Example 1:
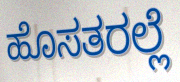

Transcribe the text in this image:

ಹೊಸತರಲ್ಲೆ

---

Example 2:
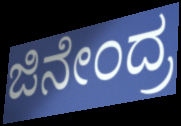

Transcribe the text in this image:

ಜಿನೇಂದ್ರ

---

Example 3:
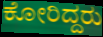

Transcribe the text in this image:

ಕೋರಿದ್ದರು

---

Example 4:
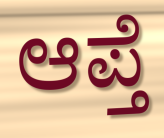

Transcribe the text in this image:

ಆಪ್ತೆ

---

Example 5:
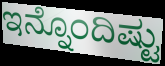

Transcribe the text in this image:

ಇನ್ನೊಂದಿಷ್ಟು